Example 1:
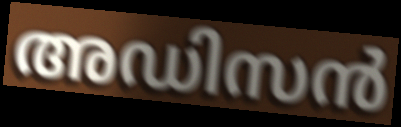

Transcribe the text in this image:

അഡിസൻ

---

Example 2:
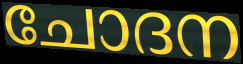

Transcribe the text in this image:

ചോദന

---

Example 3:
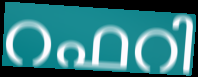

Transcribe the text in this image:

റഫറി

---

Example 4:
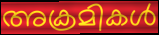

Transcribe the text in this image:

അക്രമികൾ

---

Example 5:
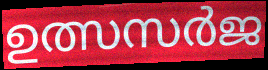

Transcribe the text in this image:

ഉത്സസർജ